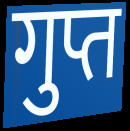
गुप्त